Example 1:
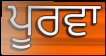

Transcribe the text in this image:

ਪੂਰਵਾ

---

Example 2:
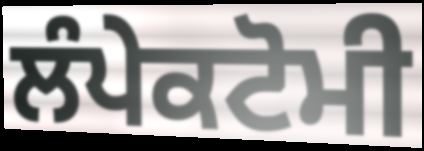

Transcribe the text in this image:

ਲੰਪੇਕਟੋਮੀ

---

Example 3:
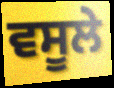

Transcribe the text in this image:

ਵਸੂਲੇ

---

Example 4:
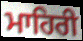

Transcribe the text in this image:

ਮਾਹਿਰੀ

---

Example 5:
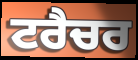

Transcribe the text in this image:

ਟਰੈਚਰ